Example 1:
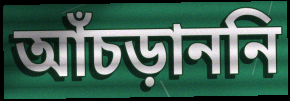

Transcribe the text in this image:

আঁচড়াননি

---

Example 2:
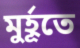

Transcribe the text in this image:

মুর্হূতে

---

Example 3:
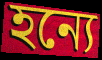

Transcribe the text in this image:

হন্যে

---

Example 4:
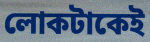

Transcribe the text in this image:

লোকটাকেই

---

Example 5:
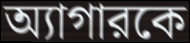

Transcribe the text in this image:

অ্যাগারকে